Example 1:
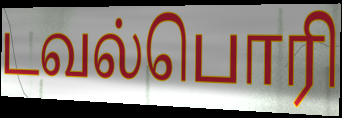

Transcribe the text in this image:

டவல்பொரி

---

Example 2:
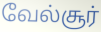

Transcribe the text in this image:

வேல்சூர்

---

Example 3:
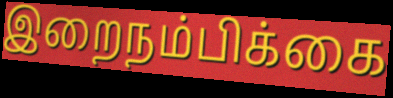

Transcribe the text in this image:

இறைநம்பிக்கை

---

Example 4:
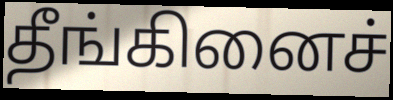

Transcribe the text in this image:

தீங்கினைச்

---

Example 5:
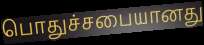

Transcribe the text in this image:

பொதுச்சபையானது